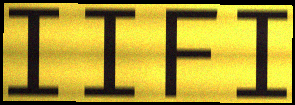
IIFI